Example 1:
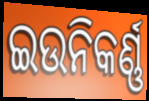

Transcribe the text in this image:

ଇଉନିକର୍ଣ୍ଣ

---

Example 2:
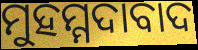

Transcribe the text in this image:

ମୁହମ୍ମଦାବାଦ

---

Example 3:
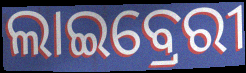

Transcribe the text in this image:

ଲାଇବ୍ରେରୀ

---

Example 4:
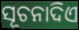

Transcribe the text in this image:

ସୂଚନାଦିଏ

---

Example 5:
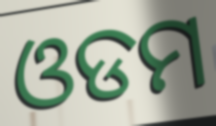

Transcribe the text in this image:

ଓଡମ